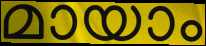
മായാം